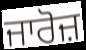
ਜਾਰੋਜ਼